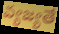
వ్యజ్యతే